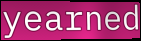
yearned